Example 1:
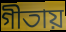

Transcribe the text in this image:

গীতায়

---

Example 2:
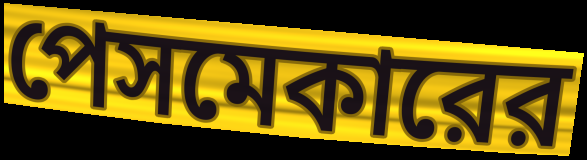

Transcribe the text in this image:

পেসমেকারের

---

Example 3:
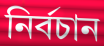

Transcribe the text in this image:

নির্বচান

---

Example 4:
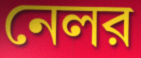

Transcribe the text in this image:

নেলর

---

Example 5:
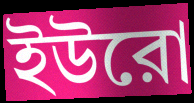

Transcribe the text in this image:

ইউরো